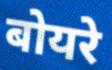
बोयरे